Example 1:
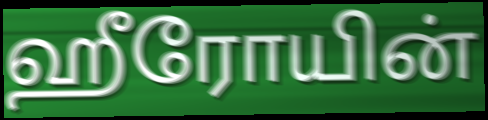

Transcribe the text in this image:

ஹீரோயின்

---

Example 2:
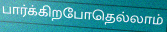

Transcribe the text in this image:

பார்க்கிறபோதெல்லாம்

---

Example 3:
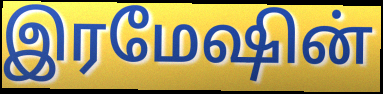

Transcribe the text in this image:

இரமேஷின்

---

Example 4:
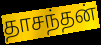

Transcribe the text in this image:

தாசந்தன்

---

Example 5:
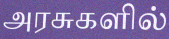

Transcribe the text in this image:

அரசுகளில்